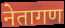
नेतागण